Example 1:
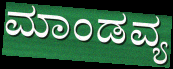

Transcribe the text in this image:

ಮಾಂಡವ್ಯ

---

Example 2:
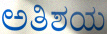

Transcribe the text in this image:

ಅತಿಶಯ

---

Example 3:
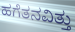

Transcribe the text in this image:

ಹಗೆತನವಿತ್ತು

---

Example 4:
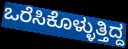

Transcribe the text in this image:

ಒರೆಸಿಕೊಳ್ಳುತ್ತಿದ್ದ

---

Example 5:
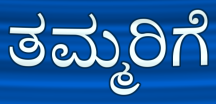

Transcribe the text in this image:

ತಮ್ಮರಿಗೆ